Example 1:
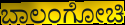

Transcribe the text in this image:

ಬಾಲಂಗೋಚಿ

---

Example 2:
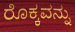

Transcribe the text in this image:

ರೊಕ್ಕವನ್ನು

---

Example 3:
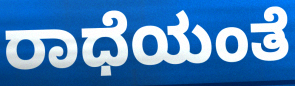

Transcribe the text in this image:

ರಾಧೆಯಂತೆ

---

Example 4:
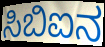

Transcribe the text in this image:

ಸಿಬಿಐನ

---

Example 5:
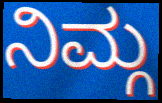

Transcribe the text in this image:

ನಿಮ್ಗ